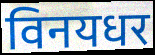
विनयधर